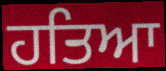
ਹਤਿਆ